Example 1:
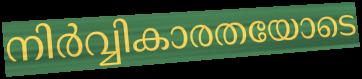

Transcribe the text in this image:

നിർവ്വികാരതയോടെ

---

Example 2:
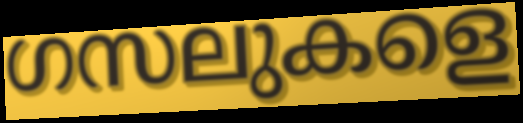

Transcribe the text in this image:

ഗസലുകളെ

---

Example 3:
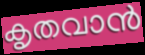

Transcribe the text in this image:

കൃതവാൻ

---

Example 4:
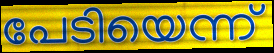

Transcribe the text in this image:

പേടിയെന്ന്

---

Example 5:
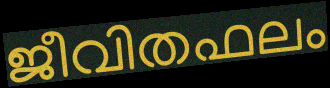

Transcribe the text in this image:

ജീവിതഫലം